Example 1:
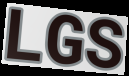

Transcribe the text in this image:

LGS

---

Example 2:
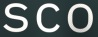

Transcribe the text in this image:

sco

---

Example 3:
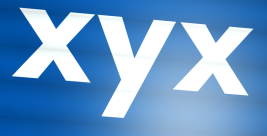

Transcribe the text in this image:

xyx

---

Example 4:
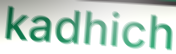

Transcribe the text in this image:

kadhich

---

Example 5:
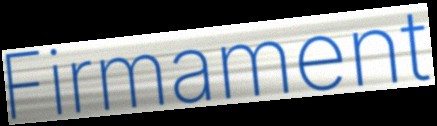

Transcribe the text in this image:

Firmament